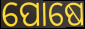
ପୋଷେ